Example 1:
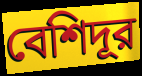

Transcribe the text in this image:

বেশিদূর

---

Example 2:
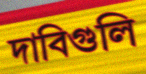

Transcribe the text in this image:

দাবিগুলি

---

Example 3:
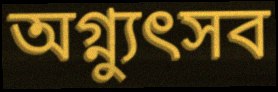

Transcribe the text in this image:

অগ্ন্যুৎসব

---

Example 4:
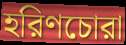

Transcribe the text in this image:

হরিণচোরা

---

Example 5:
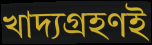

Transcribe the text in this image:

খাদ্যগ্রহণই